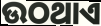
ଉଠଥାଏ